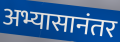
अभ्यासानंतर